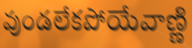
వుండలేకపోయేవాణ్ణి